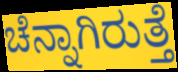
ಚೆನ್ನಾಗಿರುತ್ತೆ